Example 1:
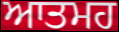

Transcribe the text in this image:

ਆਤਮਹ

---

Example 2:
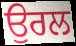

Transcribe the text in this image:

ਉਰਲ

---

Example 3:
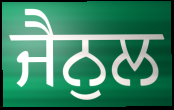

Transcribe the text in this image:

ਜੈਨੁਲ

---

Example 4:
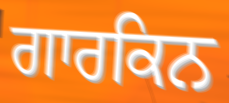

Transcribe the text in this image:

ਗਾਰਕਿਨ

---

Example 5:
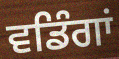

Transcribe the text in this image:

ਵਡਿੰਗਾਂ